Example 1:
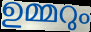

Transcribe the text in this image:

ഉമ്മറും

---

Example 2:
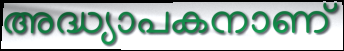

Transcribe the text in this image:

അദ്ധ്യാപകനാണ്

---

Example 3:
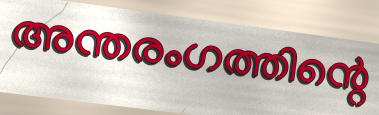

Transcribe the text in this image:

അന്തരംഗത്തിന്റെ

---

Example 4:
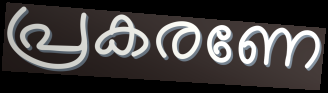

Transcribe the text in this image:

പ്രകരണേ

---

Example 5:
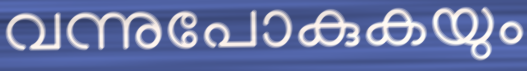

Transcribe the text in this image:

വന്നുപോകുകയും